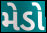
મેડો